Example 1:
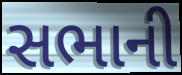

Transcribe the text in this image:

સભાની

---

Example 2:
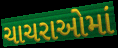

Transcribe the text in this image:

ચાચરાઓમાં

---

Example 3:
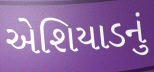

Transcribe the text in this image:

એશિયાડનું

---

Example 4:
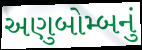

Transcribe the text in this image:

અણુબોમ્બનું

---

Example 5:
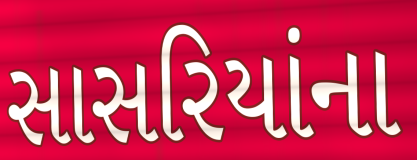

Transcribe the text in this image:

સાસરિયાંના